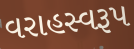
વરાહસ્વરૂપ